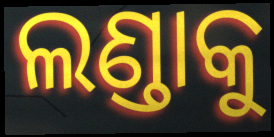
ଲଣ୍ଡାକୁ